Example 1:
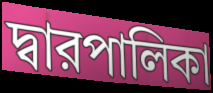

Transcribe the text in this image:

দ্বারপালিকা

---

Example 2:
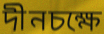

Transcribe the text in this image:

দীনচক্ষে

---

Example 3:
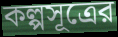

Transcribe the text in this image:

কল্পসূত্রের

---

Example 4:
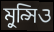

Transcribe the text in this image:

মুন্সিও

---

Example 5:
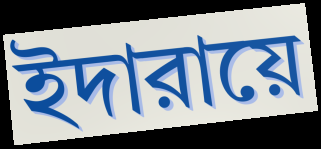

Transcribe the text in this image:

ইদারায়ে